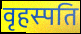
वृहस्पति